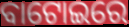
ବାଟୋଇରେ